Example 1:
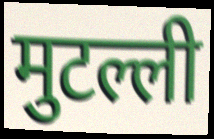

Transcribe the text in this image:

मुटल्ली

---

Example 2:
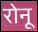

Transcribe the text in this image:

रोनू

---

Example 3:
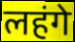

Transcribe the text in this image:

लहंगे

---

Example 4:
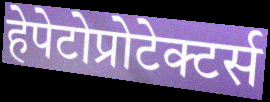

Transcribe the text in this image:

हेपेटोप्रोटेक्टर्स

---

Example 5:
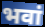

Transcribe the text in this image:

भवां